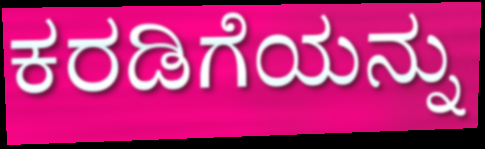
ಕರಡಿಗೆಯನ್ನು